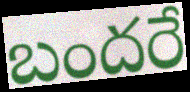
బందరే